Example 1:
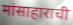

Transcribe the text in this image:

मांसाहाराची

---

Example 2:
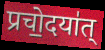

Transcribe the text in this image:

प्रचो॒दया॑त्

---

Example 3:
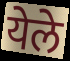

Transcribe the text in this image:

येले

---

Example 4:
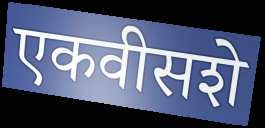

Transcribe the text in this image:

एकवीसशे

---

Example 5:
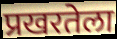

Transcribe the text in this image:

प्रखरतेला